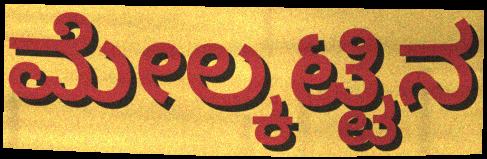
ಮೇಲ್ಕಟ್ಟಿನ